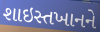
શાઇસ્તખાનને